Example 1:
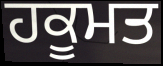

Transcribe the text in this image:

ਹਕੂਮਤ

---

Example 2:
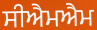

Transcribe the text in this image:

ਸੀਐਮਐਮ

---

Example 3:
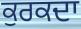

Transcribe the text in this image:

ਕੁਰਕਦਾ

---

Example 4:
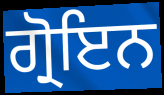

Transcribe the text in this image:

ਗ੍ਰੋਇਨ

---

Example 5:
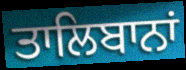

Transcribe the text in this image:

ਤਾਲਿਬਾਨਾਂ